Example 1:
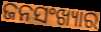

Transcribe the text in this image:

ଜନସଂଖ୍ଯାର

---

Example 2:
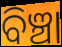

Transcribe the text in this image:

ବିଞ୍ଚା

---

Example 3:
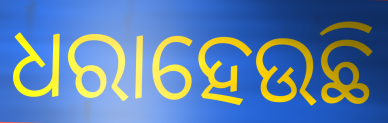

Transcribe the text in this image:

ଧରାହେଉଛି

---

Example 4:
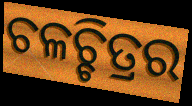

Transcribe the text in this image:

ଚଳଚ୍ଚିତ୍ରର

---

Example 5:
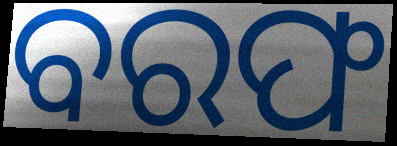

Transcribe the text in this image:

ବରଫ